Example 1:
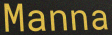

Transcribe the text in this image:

Manna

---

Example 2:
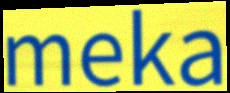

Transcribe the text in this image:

meka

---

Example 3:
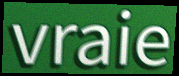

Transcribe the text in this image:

vraie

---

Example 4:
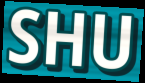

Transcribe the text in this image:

SHU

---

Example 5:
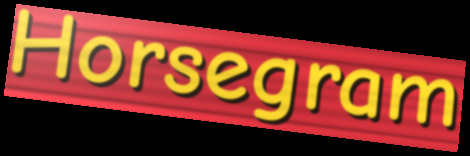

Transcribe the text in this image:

Horsegram